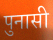
पुनासी